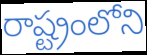
రాష్ట్రంలోని